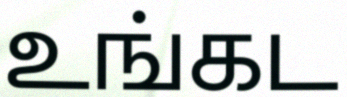
உங்கட